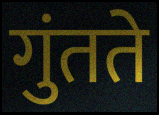
गुंतते